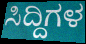
ಸಿದ್ದಿಗಳ